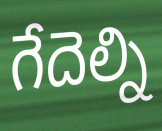
గేదెల్ని